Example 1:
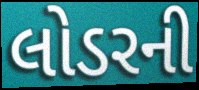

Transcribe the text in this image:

લોડરની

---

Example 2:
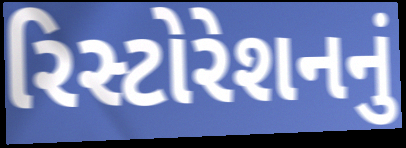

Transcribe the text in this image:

રિસ્ટોરેશનનું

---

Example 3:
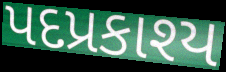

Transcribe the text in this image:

પદપ્રકાશ્ય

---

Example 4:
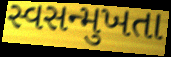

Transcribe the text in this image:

સ્વસન્મુખતા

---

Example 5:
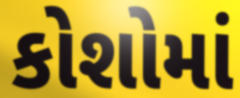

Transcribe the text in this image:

કોશોમાં